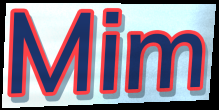
Mim